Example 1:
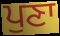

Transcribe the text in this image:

ਪੁਣਾ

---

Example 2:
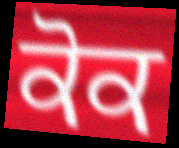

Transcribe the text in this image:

ਕੋਕ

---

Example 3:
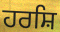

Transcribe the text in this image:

ਹਰਸ਼ਿ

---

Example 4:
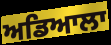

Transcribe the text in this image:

ਅਡਿਆਲਾ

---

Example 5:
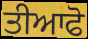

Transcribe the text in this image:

ਤੀਆਫੋ